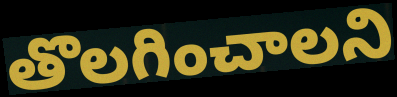
తొలగించాలని